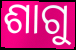
ଶାଗୁ